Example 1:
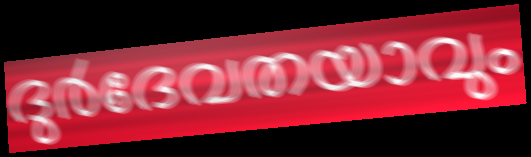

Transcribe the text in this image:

ദുർദേവതയാവും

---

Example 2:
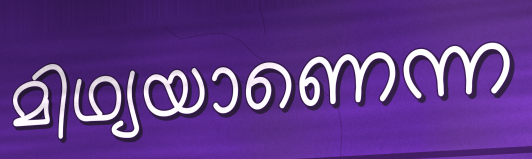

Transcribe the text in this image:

മിഥ്യയാണെന്ന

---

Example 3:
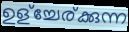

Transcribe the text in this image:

ഉള്ച്ചേര്ക്കുന്ന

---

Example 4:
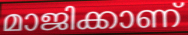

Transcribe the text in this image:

മാജിക്കാണ്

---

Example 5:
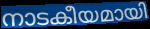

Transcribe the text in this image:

നാടകീയമായി